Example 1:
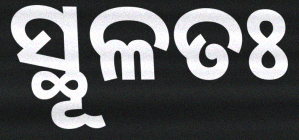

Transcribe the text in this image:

ସ୍ଥୂଳତଃ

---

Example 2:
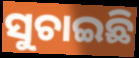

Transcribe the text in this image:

ସୁଚାଇଛି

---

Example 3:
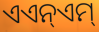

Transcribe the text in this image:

ଏଏନ୍ଏମ୍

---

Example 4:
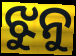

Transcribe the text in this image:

ଝୁନୁ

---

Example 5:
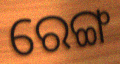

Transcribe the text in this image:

ରେଙ୍ଗ